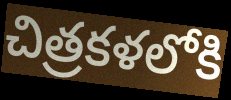
చిత్రకళలోకి